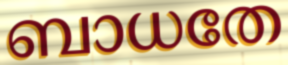
ബാധതേ